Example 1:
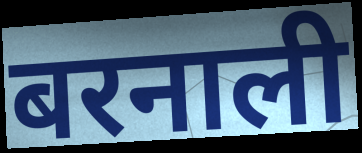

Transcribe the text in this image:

बरनाली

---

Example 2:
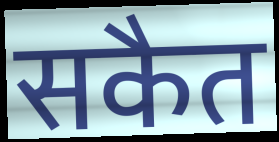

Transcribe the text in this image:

सकैत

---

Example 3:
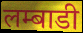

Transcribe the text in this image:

लम्बाडी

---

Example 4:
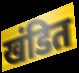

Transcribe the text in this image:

खंडित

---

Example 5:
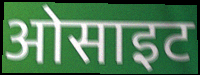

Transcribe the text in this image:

ओसाइट